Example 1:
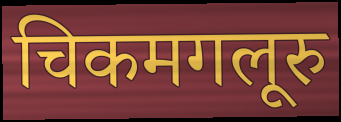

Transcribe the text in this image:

चिकमगलूरु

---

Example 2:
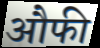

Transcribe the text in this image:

औफी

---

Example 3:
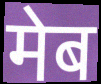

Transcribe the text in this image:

मेब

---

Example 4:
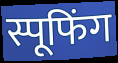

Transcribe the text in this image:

स्पूफिंग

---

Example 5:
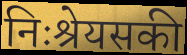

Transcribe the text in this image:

निःश्रेयसकी